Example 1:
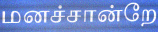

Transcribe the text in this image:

மனச்சான்றே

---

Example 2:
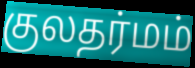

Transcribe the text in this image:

குலதர்மம்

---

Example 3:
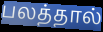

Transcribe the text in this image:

பலத்தால்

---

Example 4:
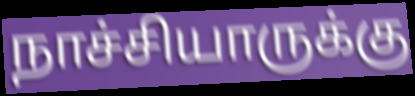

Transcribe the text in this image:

நாச்சியாருக்கு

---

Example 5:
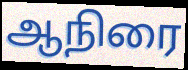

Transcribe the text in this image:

ஆநிரை